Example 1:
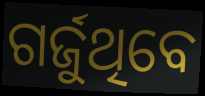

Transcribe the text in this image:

ଗର୍ଜୁଥିବେ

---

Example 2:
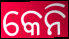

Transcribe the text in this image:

କେନି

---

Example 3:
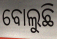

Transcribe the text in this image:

ବୋଲୁଛି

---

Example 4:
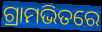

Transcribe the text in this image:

ଗ୍ରାମଭିତରେ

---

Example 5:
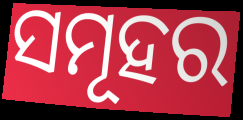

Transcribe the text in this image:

ସମୂହର